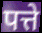
पत्ते